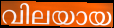
വിലയായ